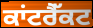
ਕਾਂਟਰੈੱਕਟ